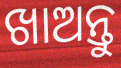
ଖାଅନ୍ତୁ